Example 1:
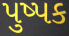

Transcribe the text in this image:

પુષ્પક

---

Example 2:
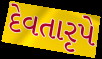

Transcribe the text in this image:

દેવતારૃપે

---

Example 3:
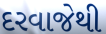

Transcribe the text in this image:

દરવાજેથી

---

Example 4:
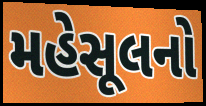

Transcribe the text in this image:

મહેસૂલનો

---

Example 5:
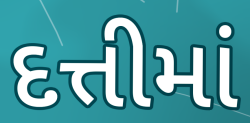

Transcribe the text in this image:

દત્તીમાં